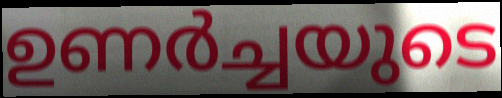
ഉണർച്ചയുടെ